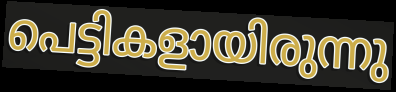
പെട്ടികളായിരുന്നു